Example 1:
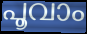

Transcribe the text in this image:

പൂവാം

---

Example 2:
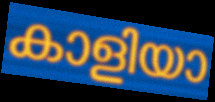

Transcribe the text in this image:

കാളിയാ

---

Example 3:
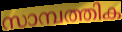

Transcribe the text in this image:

സാമ്പത്തിക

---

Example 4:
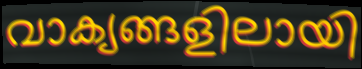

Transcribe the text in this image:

വാക്യങ്ങളിലായി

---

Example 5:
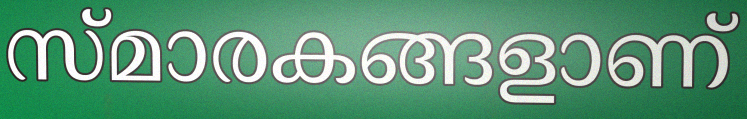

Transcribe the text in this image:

സ്മാരകങ്ങളാണ്